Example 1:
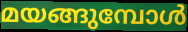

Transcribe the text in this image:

മയങ്ങുമ്പോൾ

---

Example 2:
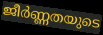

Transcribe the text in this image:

ജീർണ്ണതയുടെ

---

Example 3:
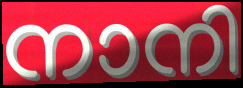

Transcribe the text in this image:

നാനി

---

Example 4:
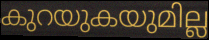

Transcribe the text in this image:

കുറയുകയുമില്ല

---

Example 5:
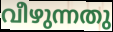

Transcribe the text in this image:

വീഴുന്നതു